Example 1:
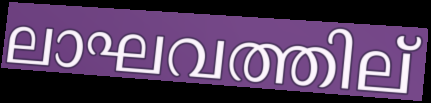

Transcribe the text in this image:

ലാഘവത്തില്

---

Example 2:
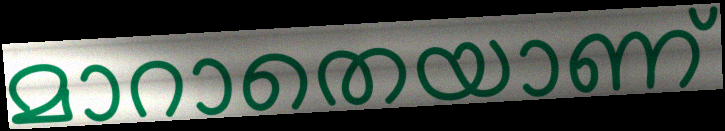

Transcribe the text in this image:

മാറാതെയാണ്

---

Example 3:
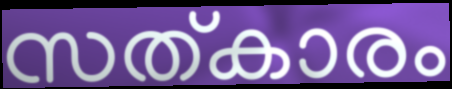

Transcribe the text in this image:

സത്കാരം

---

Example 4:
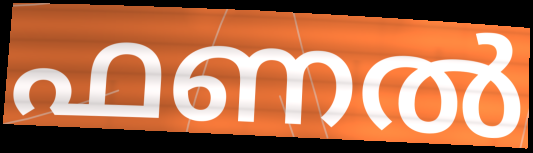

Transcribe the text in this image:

ഫണൽ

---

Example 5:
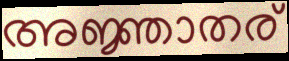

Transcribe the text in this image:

അജ്ഞാതര്